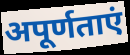
अपूर्णताएं